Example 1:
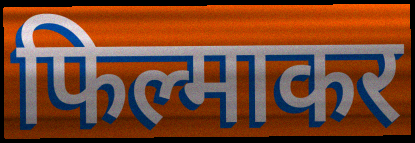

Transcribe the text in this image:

फिल्माकर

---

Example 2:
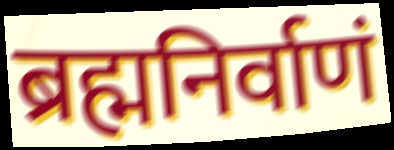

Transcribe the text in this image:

ब्रह्मनिर्वाणं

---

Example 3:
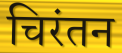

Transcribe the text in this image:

चिरंतन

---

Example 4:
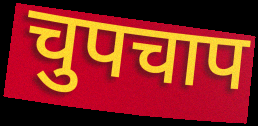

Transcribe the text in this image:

चुपचाप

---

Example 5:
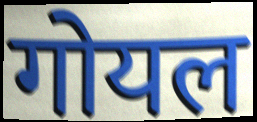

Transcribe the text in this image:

गोयल